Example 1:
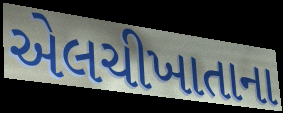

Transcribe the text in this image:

એલચીખાતાના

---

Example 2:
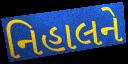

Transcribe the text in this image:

નિહાલને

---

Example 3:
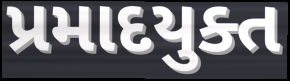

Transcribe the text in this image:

પ્રમાદયુક્ત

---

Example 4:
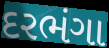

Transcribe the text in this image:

દરભંગા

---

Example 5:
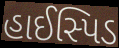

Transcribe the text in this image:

હાઈસ્પિડ